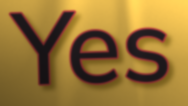
Yes